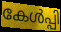
കേൾപ്പി